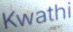
Kwathi